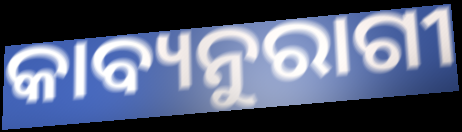
କାବ୍ୟନୁରାଗୀ